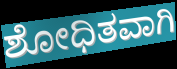
ಶೋಧಿತವಾಗಿ